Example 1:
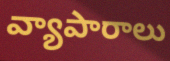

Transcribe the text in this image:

వ్యాపారాలు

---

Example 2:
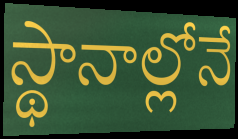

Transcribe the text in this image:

స్థానాల్లోనే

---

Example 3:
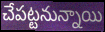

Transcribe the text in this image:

చేపట్టనున్నాయి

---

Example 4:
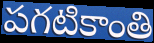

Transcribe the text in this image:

పగటికాంతి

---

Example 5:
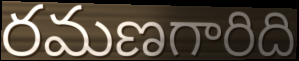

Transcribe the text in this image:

రమణగారిది